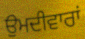
ਉਮਦੀਵਾਰਾਂ